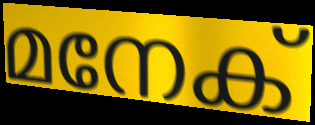
മനേക്